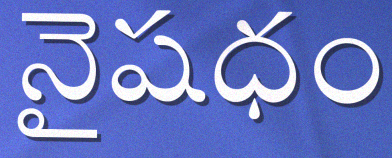
నైషధం